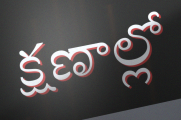
క్షణాల్లో